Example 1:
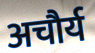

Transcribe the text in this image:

अचौर्य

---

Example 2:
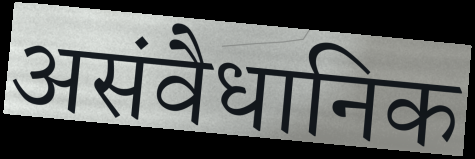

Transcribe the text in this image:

असंवैधानिक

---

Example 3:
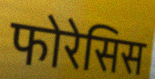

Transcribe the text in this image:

फोरेसिस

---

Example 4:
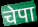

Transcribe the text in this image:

चेपा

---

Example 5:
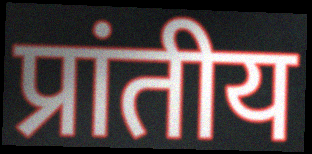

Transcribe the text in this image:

प्रांतीय